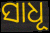
ସାଧୂ